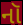
નૉ